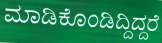
ಮಾಡಿಕೊಂಡಿದ್ದಿದ್ದರೆ